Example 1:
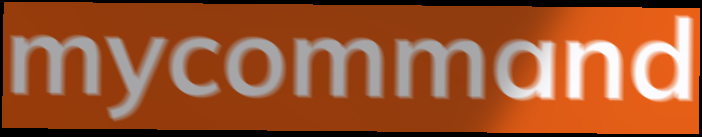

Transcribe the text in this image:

mycommand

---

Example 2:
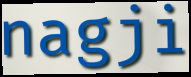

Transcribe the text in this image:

nagji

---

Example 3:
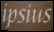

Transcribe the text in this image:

ipsius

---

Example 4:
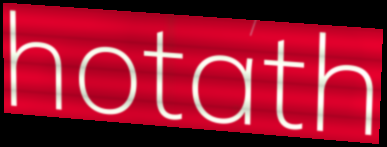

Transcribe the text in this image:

hotath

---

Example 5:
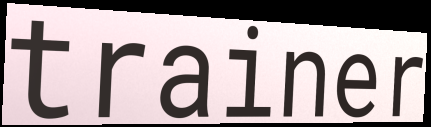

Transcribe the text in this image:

trainer